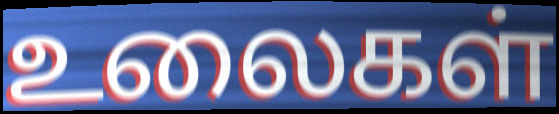
உலைகள்